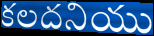
కలదనియు